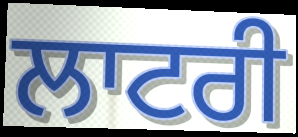
ਲਾਟਰੀ